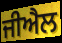
ਜੀਐਲ